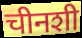
चीनशी